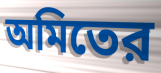
অমিতের